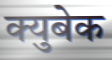
क्युबेक